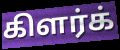
கிளர்க்